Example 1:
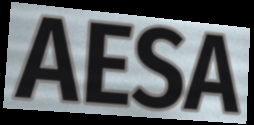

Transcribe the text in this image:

AESA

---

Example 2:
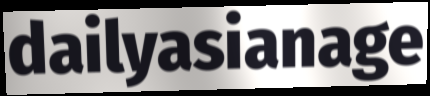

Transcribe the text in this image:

dailyasianage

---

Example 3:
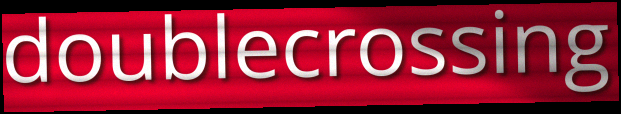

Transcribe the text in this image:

doublecrossing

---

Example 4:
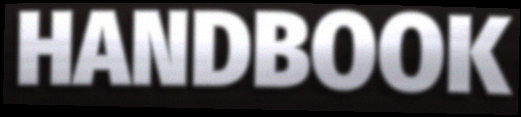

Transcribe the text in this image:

HANDBOOK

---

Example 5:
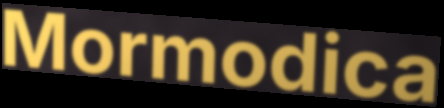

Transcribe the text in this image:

Mormodica